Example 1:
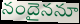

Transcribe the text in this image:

నందైననూ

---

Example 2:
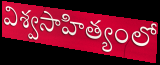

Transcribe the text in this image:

విశ్వసాహిత్యంలో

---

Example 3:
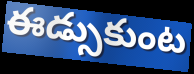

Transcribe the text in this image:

ఈడ్సుకుంట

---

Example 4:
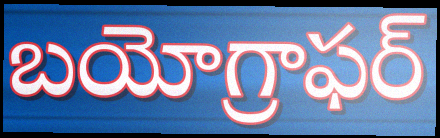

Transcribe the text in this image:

బయోగ్రాఫర్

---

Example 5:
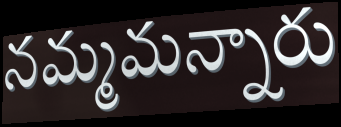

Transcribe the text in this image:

నమ్మమన్నారు